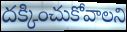
దక్కించుకోవాలని